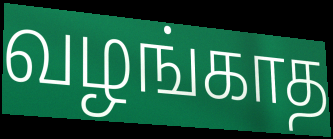
வழங்காத